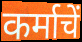
कर्माचें